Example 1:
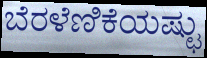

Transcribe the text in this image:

ಬೆರಳೆಣಿಕೆಯಷ್ಟು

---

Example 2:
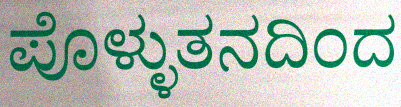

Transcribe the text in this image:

ಪೊಳ್ಳುತನದಿಂದ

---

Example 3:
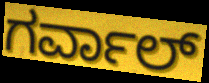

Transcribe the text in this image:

ಗರ್ವಾಲ್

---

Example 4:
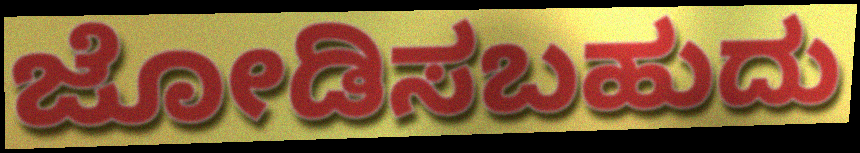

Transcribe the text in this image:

ಜೋಡಿಸಬಹುದು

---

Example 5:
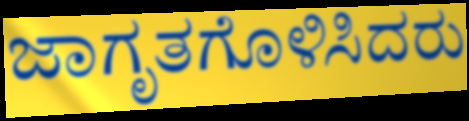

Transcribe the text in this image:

ಜಾಗೃತಗೊಳಿಸಿದರು